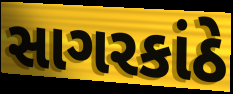
સાગરકાંઠે